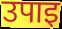
उपाइ